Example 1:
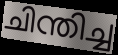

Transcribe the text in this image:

ചിന്തിച്ച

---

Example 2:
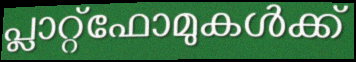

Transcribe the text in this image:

പ്ലാറ്റ്ഫോമുകൾക്ക്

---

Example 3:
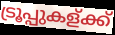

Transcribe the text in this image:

ട്രൂപ്പുകള്ക്ക്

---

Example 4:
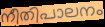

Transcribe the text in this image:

നീതിപാലനം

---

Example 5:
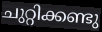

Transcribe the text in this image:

ചുറ്റിക്കണ്ടു